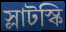
স্লাটস্কি